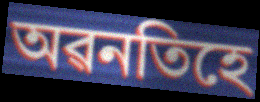
অৱনতিহে